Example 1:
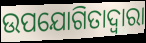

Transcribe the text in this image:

ଉପଯୋଗିତାଦ୍ୱାରା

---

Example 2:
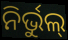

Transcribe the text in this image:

ନିର୍ଭୁଲ୍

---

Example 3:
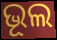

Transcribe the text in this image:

ଭୂଲ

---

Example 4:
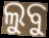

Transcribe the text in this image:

ଲୁବୁ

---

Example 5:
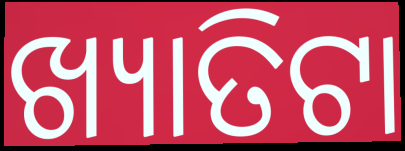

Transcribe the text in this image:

ଖ୍ୟାତିଟା